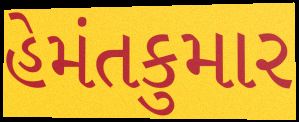
હેમંતકુમાર